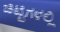
ಚಿಟ್ಟೆಗಳಲ್ಲಿ